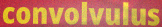
convolvulus